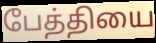
பேத்தியை